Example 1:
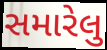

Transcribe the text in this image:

સમારેલુ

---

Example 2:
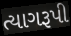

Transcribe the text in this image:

ત્યાગરૂપી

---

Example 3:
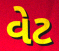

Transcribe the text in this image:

વેટ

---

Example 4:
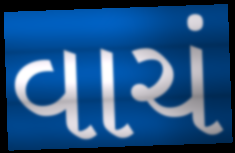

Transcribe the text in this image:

વાચં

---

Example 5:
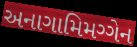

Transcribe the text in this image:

અનાગામિમગ્ગેન